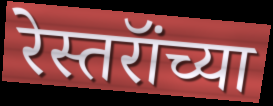
रेस्तरॉंच्या